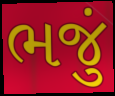
ભજું